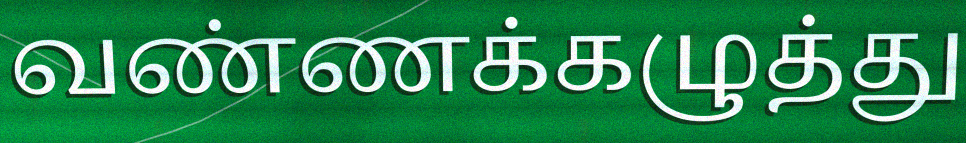
வண்ணக்கழுத்து